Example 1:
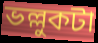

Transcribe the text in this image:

ভল্লুকটা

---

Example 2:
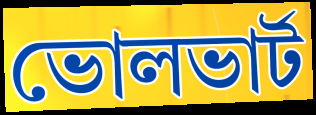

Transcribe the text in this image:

ভোলভার্ট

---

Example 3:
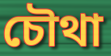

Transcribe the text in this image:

চৌথা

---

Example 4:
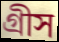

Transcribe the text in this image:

গ্রীস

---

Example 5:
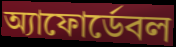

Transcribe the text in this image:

অ্যাফোর্ডেবল